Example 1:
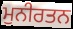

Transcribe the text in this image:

ਮੁਨੀਰਤਨ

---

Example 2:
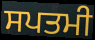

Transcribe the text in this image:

ਸਪਤਮੀ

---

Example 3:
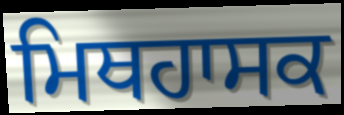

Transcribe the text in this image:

ਮਿਥਹਾਸਕ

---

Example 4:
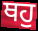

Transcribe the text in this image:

ਥਹੁ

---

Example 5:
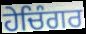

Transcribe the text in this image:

ਹੇਚਿੰਗਰ